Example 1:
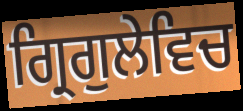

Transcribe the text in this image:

ਗ੍ਰਿਗੁਲੇਵਿਚ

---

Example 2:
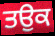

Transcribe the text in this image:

ਤਉਕ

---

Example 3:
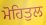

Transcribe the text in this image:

ਮੋਹਿਤੁਲ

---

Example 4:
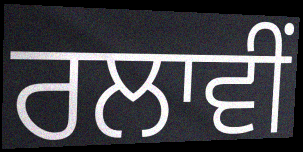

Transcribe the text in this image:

ਰਲਾਵੀਂ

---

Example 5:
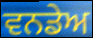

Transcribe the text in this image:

ਵਨਡੇਅ